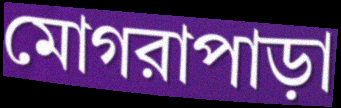
মোগরাপাড়া